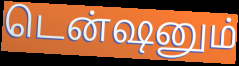
டென்ஷனும்